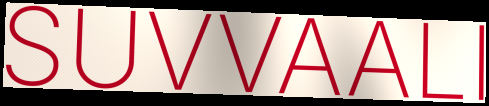
SUVVAALI